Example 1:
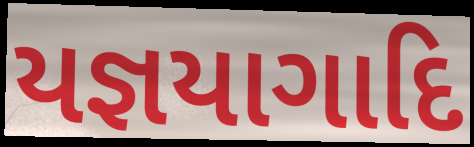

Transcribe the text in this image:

યજ્ઞયાગાદિ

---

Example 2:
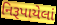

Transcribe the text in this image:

નિરૂપાયેલાં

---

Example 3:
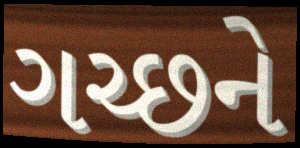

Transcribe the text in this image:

ગચ્છને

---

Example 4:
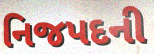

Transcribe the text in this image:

નિજપદની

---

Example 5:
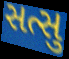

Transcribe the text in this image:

સત્સુ